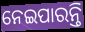
ନେଇପାରନ୍ତି